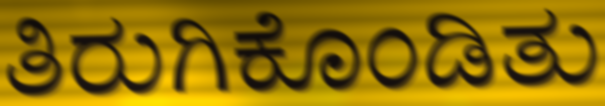
ತಿರುಗಿಕೊಂಡಿತು